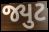
જ્યુટ